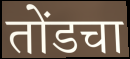
तोंडचा